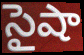
సైషా